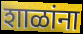
शाळांना